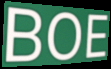
BOE